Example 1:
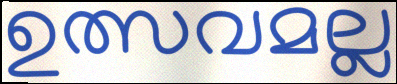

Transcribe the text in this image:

ഉത്സവമല്ല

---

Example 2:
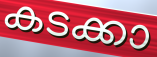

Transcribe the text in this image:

കടക്കാ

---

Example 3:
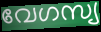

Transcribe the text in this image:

വേഗസ്യ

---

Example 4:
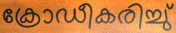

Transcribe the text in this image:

ക്രോഡീകരിച്ചു്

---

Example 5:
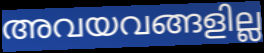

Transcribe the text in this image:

അവയവങ്ങളില്ല